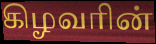
கிழவரின்